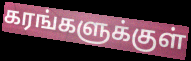
கரங்களுக்குள்